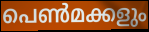
പെൺമക്കളും